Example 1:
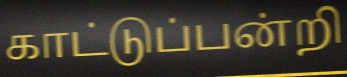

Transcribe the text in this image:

காட்டுப்பன்றி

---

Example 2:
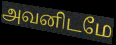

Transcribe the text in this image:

அவனிடமே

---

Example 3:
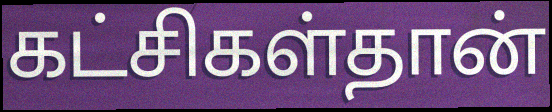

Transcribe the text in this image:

கட்சிகள்தான்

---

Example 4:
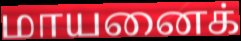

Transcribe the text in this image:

மாயனைக்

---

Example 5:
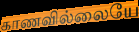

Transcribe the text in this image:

காணவில்லையே